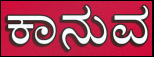
ಕಾನುವ